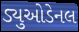
ડ્યુઓડેનલ